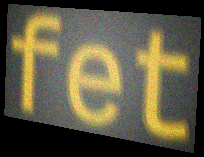
fet